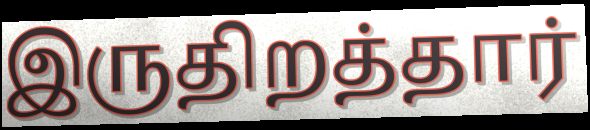
இருதிறத்தார்